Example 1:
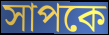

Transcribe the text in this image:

সাপকে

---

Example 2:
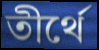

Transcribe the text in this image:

তীর্থে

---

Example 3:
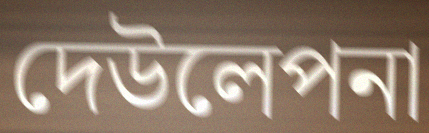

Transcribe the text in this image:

দেউলেপনা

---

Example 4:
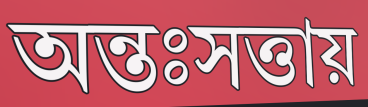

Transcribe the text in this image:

অন্তঃসত্তায়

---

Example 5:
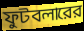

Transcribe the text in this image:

ফুটবলারের